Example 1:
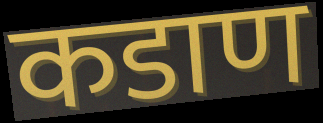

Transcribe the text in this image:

कडाण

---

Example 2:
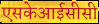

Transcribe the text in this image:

एसकेआईसीसी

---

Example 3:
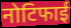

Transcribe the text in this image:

नोटिफाई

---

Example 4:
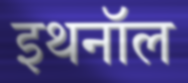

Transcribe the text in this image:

इथनॉल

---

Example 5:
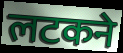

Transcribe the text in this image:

लटकने